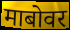
माबोवर